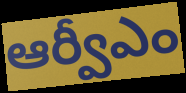
ఆర్వీఎం